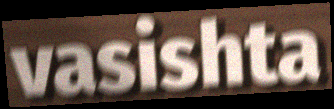
vasishta